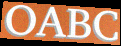
OABC